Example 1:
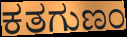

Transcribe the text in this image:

ಕತಗುಣಂ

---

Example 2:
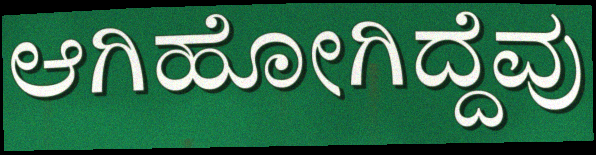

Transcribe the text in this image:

ಆಗಿಹೋಗಿದ್ದೆವು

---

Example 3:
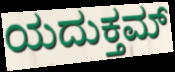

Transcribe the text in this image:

ಯದುಕ್ತಮ್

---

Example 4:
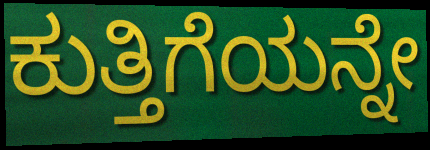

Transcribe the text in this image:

ಕುತ್ತಿಗೆಯನ್ನೇ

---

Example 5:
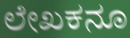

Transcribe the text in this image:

ಲೇಖಕನೂ